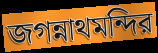
জগন্নাথমন্দির